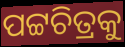
ପଟ୍ଟଚିତ୍ରକୁ